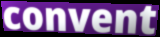
convent